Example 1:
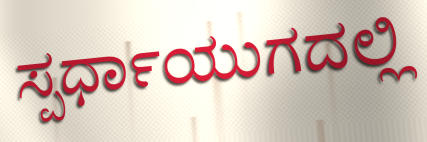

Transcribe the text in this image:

ಸ್ಪರ್ಧಾಯುಗದಲ್ಲಿ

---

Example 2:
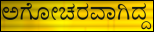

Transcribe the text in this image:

ಅಗೋಚರವಾಗಿದ್ದ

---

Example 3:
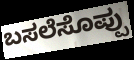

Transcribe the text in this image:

ಬಸಲೆಸೊಪ್ಪು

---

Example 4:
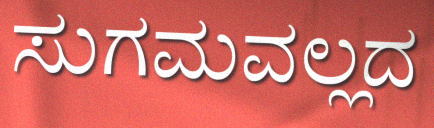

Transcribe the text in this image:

ಸುಗಮವಲ್ಲದ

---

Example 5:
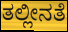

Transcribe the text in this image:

ತಲ್ಲೀನತೆ